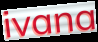
ivana